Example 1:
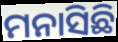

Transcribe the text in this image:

ମନାସିଛି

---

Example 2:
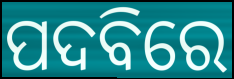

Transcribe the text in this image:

ପଦବିରେ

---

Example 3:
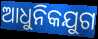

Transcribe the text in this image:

ଆଧୁନିକଯୁଗ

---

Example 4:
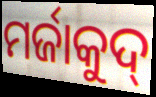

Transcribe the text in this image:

ମର୍ଜାକୁଦ୍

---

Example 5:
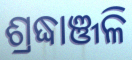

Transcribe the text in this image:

ଶ୍ରଦ୍ଧାଞ୍ଜଳି